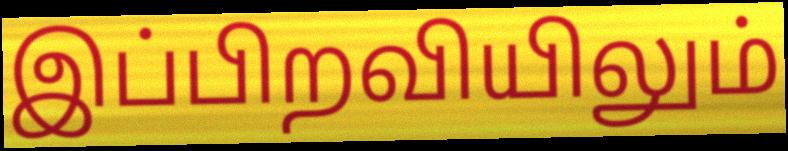
இப்பிறவியிலும்